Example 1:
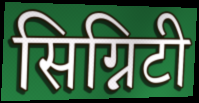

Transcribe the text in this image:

सिग्निटी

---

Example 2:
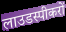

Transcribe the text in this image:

लाउडस्पीकरों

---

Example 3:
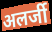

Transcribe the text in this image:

अलर्जी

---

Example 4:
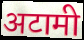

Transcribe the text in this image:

अटामी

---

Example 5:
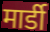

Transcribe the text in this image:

मार्डी